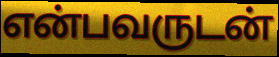
என்பவருடன்